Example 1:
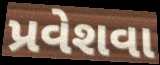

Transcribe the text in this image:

પ્રવેશવા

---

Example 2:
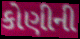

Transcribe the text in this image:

કોણીની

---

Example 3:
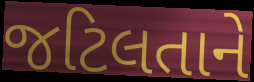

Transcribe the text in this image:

જટિલતાને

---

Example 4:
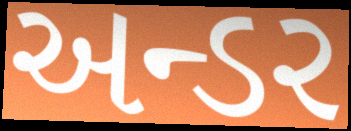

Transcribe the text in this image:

અન્ડર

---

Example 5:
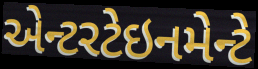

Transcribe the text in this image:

એન્ટરટેઇનમેન્ટે